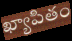
ఖ్యాపితం